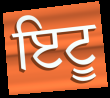
ਇਟੂ